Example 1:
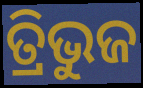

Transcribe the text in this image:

ତ୍ରିଭୁଜ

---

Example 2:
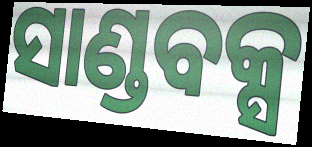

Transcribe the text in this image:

ସାଣ୍ଡବକ୍ସ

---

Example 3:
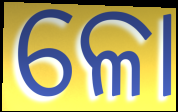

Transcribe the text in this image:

ଳୋ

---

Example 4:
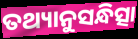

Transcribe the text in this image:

ତଥ୍ୟାନୁସନ୍ଧିତ୍ସା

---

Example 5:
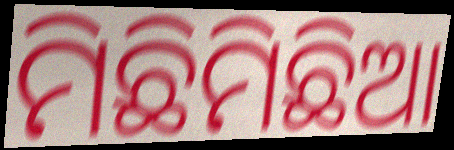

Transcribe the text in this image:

ମିଛିମିଛିଆ